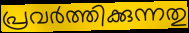
പ്രവർത്തിക്കുന്നതു